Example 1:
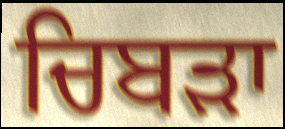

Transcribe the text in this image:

ਚਿਬੜਾ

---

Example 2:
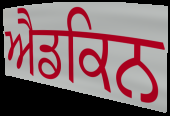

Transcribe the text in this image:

ਐਡਕਿਨ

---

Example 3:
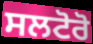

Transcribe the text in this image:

ਸਲਟੋਰੋ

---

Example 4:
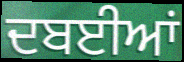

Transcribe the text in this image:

ਦਬਈਆਂ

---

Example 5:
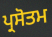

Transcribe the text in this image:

ਪ੍ਰਸੋਤਮ